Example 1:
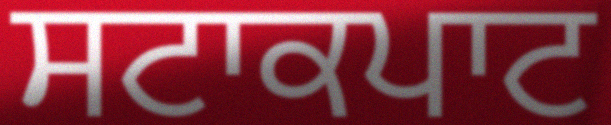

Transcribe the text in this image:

ਸਟਾਕਪਾਟ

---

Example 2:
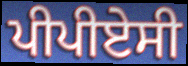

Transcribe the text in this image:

ਪੀਪੀਏਸੀ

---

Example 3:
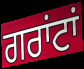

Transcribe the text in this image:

ਗਰਾਂਟਾਂ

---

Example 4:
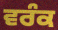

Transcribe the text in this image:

ਵਰੰਕ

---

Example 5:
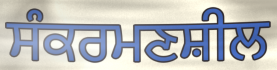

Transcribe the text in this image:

ਸੰਕਰਮਣਸ਼ੀਲ